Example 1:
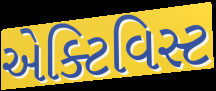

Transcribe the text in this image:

એક્ટિવિસ્ટ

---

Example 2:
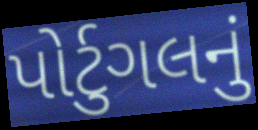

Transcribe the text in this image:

પોર્ટુગલનું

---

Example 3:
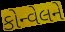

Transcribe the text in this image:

કોન્વેલને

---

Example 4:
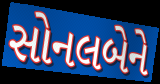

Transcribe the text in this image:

સોનલબેને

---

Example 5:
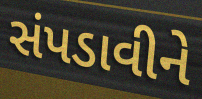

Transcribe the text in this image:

સંપડાવીને